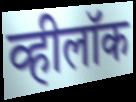
व्हीलॉक